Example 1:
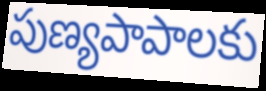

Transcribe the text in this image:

పుణ్యపాపాలకు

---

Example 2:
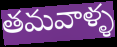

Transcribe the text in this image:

తమవాళ్ళ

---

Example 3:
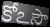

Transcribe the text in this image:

కోఽసౌ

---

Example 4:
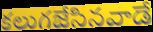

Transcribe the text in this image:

కలుగజేసినవాడే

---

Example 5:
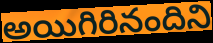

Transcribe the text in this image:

అయిగిరినందిని